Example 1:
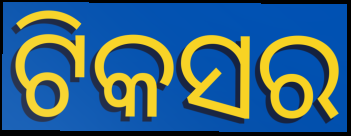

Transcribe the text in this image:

ଟିକସର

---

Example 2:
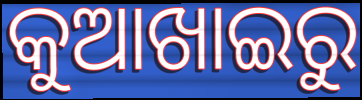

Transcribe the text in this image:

କୁଆଖାଇରୁ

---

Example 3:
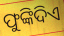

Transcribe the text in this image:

ଫୁଙ୍କିଦିଏ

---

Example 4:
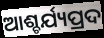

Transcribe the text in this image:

ଆଶ୍ଚର୍ଯ୍ୟପ୍ରଦ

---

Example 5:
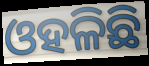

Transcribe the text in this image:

ଓହଳିଛି